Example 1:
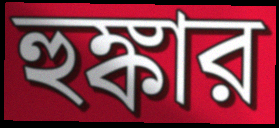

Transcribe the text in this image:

হুঙ্কার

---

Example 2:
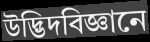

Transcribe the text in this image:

উদ্ভিদবিজ্ঞানে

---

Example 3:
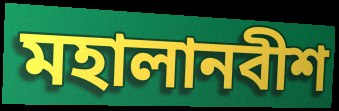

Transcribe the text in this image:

মহালানবীশ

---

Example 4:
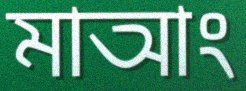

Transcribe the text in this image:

মাআং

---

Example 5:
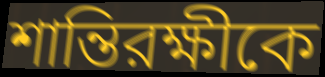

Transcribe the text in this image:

শান্তিরক্ষীকে